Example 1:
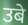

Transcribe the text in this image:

उबे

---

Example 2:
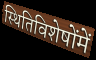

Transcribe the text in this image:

स्थितिविशेषोंमें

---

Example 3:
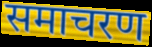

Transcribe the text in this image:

समाचरण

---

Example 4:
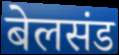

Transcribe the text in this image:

बेलसंड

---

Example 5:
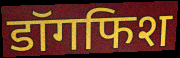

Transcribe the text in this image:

डॉगफिश